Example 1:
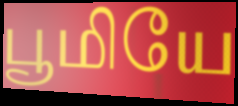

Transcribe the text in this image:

பூமியே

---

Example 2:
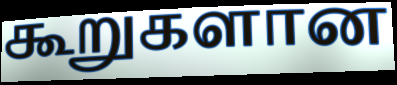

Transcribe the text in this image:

கூறுகளான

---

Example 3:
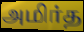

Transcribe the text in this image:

அமிர்த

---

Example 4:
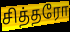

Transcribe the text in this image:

சித்தரோ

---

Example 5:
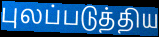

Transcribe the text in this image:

புலப்படுத்திய